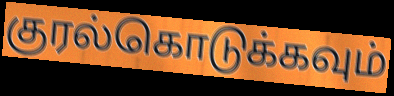
குரல்கொடுக்கவும்